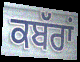
ਕਬੱਰਾਂ